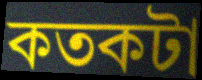
কতকটা